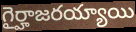
గైర్హాజరయ్యాయి